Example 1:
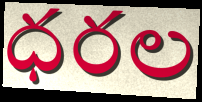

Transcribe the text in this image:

ధరల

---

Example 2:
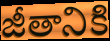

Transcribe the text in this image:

జీతానికి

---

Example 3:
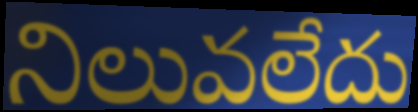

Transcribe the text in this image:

నిలువలేదు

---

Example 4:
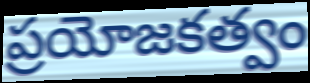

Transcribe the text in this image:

ప్రయోజకత్వం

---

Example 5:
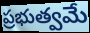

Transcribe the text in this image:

ప్రభుత్వమే